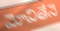
మోవితేనె